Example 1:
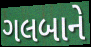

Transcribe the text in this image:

ગલબાને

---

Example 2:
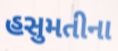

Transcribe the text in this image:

હસુમતીના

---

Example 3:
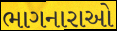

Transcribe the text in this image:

ભાગનારાઓ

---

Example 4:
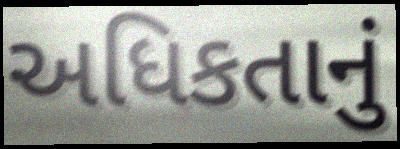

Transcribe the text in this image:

અધિકતાનું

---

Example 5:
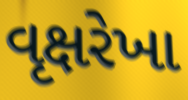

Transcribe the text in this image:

વૃક્ષરેખા